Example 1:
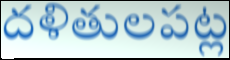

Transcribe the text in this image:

దళితులపట్ల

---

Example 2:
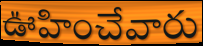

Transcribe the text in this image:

ఊహించేవారు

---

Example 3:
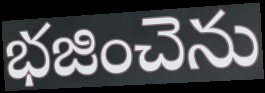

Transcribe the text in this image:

భజించెను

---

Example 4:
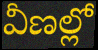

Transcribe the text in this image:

వీణల్లో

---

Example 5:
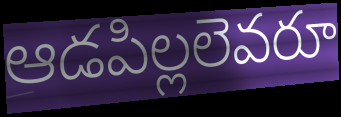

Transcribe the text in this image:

ఆడపిల్లలెవరూ